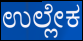
ಉಲ್ಲೇಕ